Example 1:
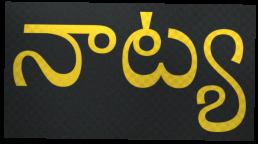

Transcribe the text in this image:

నాట్య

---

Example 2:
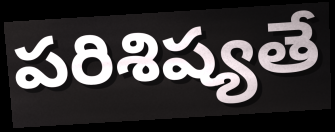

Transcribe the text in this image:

పరిశిష్యతే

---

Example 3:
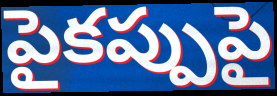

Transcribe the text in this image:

పైకప్పుపై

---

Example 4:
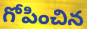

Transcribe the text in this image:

గోపించిన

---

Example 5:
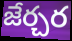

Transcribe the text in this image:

జేర్చర